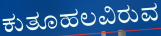
ಕುತೂಹಲವಿರುವ